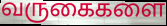
வருகைகளை